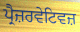
ਪ੍ਰੈਜ਼ਰਵੇਟਿਵਜ਼